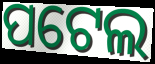
ପଟେଲ